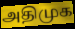
அதிமுக